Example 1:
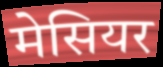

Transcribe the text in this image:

मेसियर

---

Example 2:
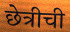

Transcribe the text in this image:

छेत्रीची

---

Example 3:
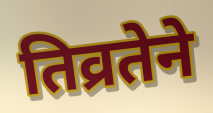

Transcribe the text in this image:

तिव्रतेने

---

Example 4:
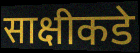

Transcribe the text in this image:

साक्षीकडे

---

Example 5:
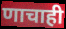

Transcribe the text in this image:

णाचाही